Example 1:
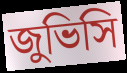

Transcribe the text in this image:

জুভিসি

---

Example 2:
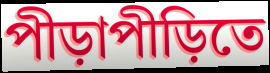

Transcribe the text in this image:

পীড়াপীড়িতে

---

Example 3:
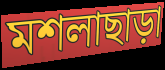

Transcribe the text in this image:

মশলাছাড়া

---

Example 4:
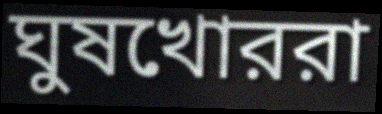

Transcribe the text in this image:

ঘুষখোররা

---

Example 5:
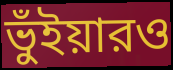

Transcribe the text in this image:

ভুঁইয়ারও